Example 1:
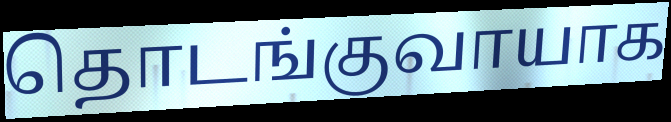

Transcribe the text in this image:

தொடங்குவாயாக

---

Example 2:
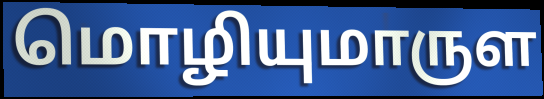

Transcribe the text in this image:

மொழியுமாருள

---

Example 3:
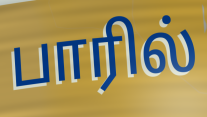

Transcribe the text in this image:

பாரில்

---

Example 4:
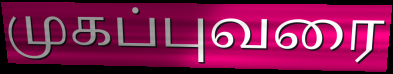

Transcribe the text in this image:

முகப்புவரை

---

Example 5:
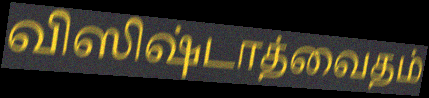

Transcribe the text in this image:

விஸிஷ்டாத்வைதம்